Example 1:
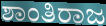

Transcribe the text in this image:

ಶಾಂತಿರಾಜ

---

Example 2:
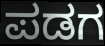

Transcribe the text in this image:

ಪಡಗ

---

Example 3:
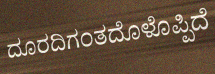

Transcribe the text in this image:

ದೂರದಿಗಂತದೊಳೊಪ್ಪಿದೆ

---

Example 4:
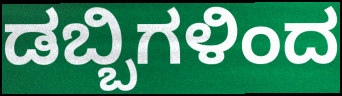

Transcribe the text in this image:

ಡಬ್ಬಿಗಳಿಂದ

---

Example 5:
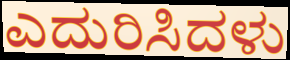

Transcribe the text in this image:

ಎದುರಿಸಿದಳು